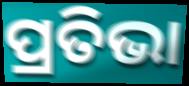
ପ୍ରତିଭା